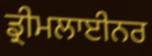
ਡ੍ਰੀਮਲਾਈਨਰ